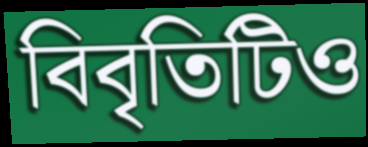
বিবৃতিটিও